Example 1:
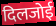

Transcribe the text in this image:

दिलजोई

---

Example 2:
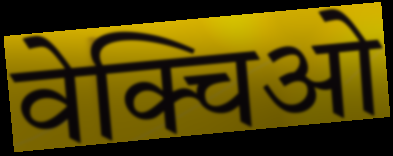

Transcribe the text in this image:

वेक्चिओ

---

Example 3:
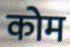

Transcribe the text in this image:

कोम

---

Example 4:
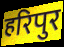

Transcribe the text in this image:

हरिपुर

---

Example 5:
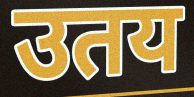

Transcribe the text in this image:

उतय